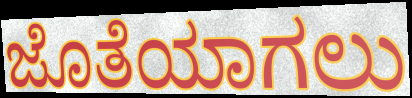
ಜೊತೆಯಾಗಲು